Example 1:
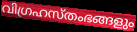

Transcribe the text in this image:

വിഗ്രഹസ്തംഭങ്ങളും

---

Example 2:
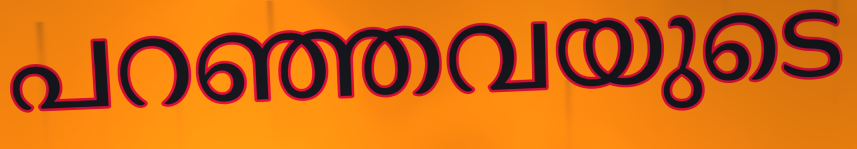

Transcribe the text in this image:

പറഞ്ഞവയുടെ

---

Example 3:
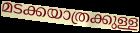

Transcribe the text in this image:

മടക്കയാത്രക്കുള്ള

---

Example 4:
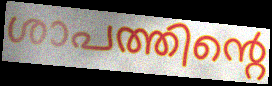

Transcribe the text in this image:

ശാപത്തിന്റെ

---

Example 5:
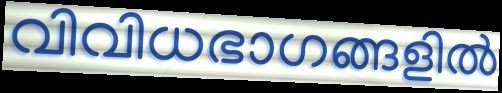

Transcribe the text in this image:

വിവിധഭാഗങ്ങളിൽ